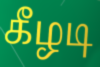
கீழடி